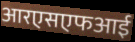
आरएसएफआई